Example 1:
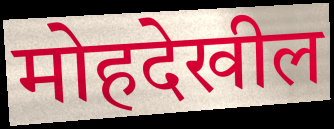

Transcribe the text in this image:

मोहदेखील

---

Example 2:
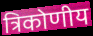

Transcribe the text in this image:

त्रिकोणीय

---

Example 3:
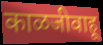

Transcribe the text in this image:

काळजीवाहू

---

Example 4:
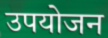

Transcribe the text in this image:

उपयोजन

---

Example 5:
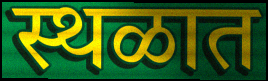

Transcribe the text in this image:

स्थळात